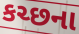
કચ્છના